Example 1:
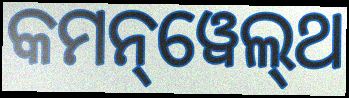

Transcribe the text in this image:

କମନ୍‌ୱେଲ୍‌ଥ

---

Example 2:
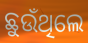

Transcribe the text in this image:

ଛୁଉଁଥିଲେ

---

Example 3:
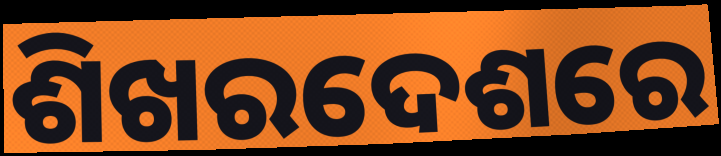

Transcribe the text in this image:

ଶିଖରଦେଶରେ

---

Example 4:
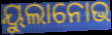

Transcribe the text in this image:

ୟୁଲାନୋଭ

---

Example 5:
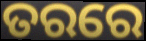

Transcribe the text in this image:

ତରରେ